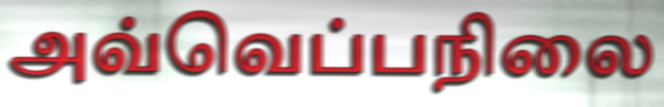
அவ்வெப்பநிலை